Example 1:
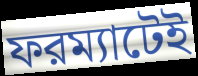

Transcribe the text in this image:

ফরম্যাটেই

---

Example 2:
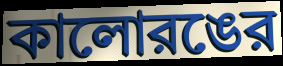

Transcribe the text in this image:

কালোরঙের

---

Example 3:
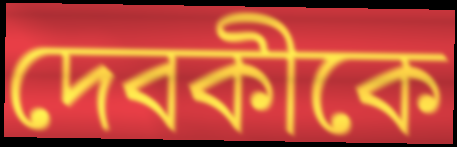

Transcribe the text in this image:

দেবকীকে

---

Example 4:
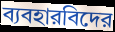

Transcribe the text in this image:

ব্যবহারবিদের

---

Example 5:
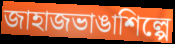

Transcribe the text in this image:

জাহাজভাঙাশিল্পে